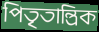
পিতৃতান্ত্ৰিক